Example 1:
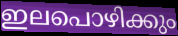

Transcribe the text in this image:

ഇലപൊഴിക്കും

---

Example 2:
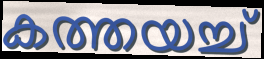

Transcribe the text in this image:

കത്തയച്ച്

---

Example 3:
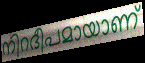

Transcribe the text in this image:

നിറദീപമായാണ്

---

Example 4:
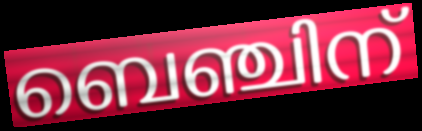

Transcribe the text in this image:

ബെഞ്ചിന്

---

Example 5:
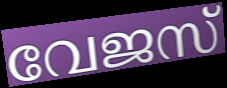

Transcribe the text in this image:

വേജസ്